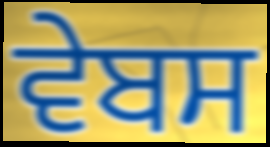
ਵੇਬਸ